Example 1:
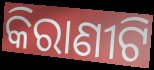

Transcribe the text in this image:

କିରାଣୀଟି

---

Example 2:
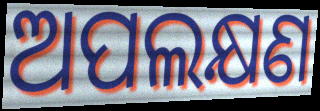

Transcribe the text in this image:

ଅପଲକ୍ଷଣ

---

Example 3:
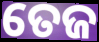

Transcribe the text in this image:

ତେଜ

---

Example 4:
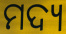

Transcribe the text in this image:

ମଦ୍ଯ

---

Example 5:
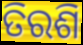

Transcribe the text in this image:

ତିରଶି